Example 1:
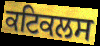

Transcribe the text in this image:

ਕਟਿਕਲਸ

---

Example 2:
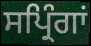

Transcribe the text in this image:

ਸਪ੍ਰਿੰਗਾਂ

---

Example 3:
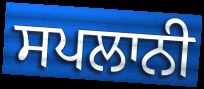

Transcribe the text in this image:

ਸਪਲਾਨੀ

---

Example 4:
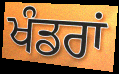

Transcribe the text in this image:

ਖੰਡਰਾਂ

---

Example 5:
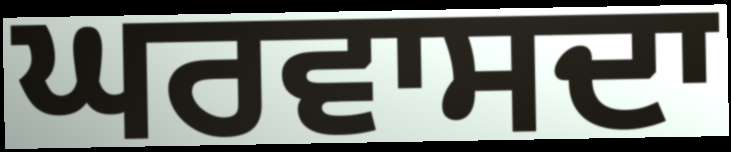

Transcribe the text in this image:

ਘਰਵਾਸਦਾ